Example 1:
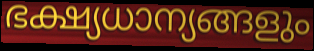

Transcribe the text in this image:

ഭക്ഷ്യധാന്യങ്ങളും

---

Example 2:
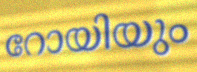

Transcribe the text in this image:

റോയിയും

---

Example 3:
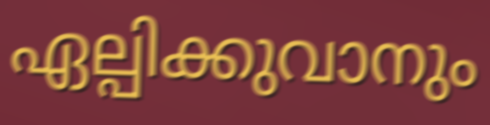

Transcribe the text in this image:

ഏല്പിക്കുവാനും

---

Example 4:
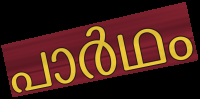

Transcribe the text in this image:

പാർഥം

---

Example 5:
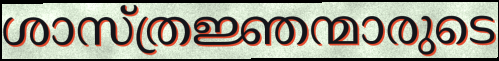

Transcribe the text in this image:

ശാസ്ത്രജ്ഞന്മാരുടെ